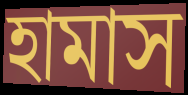
হামাস